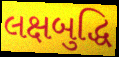
લક્ષબુદ્ધિ